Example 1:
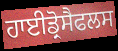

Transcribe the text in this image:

ਹਾਈਡ੍ਰੋਸੈਫਲਸ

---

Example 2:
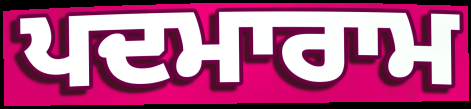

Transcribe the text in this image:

ਪਦਮਾਰਾਮ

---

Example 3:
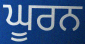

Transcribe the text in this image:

ਘੂਰਨ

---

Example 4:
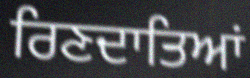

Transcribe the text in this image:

ਰਿਣਦਾਤਿਆਂ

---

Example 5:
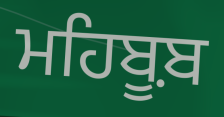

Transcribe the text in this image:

ਮਹਿਬ਼ੂਬ